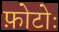
फ़ोटोः